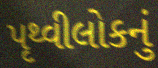
પૃથ્વીલોકનું